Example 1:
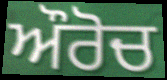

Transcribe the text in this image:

ਔਰੋਚ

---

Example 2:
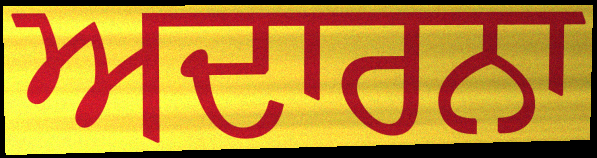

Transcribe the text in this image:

ਅਦਾਰਨਾ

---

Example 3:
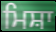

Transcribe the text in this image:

ਮਿਸ਼ਾ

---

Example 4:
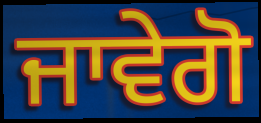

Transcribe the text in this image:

ਜਾਵੇਗੋ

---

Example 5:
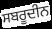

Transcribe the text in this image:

ਸਬਰੂਦੀਨ